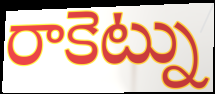
రాకెట్ను